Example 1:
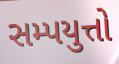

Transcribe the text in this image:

સમ્પયુત્તો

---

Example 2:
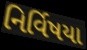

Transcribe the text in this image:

નિર્વિષયા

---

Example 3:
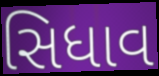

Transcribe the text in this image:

સિધાવ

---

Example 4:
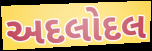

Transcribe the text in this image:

અદલોદલ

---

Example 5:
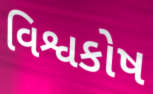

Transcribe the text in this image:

વિશ્વકોષ